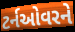
ટર્નઓવરને